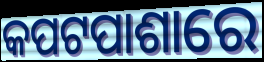
କପଟପାଶାରେ